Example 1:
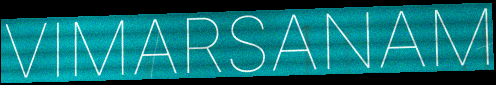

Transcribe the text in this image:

VIMARSANAM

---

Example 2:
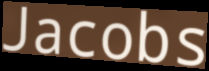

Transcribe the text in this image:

Jacobs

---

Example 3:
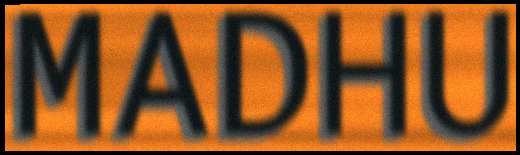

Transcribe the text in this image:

MADHU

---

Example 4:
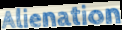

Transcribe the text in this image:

Alienation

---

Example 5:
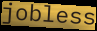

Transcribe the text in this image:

jobless